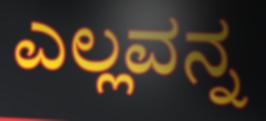
ಎಲ್ಲವನ್ನ